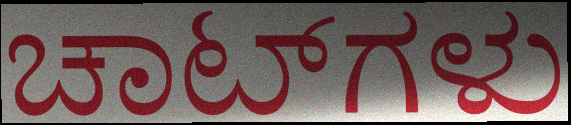
ಚಾಟ್‌ಗಳು